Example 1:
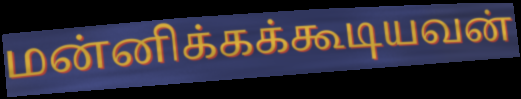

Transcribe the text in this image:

மன்னிக்கக்கூடியவன்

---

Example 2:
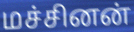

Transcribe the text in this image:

மச்சினன்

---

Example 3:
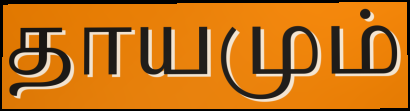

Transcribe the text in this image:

தாயமும்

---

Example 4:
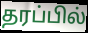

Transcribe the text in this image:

தரப்பில்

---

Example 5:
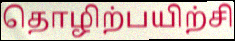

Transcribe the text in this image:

தொழிற்பயிற்சி